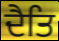
ਦੈਤਿ